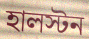
হালস্টন